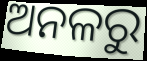
ଅନଳରୁ